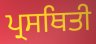
ਪ੍ਰਸਥਿਤੀ